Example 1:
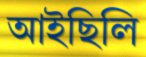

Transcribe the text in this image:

আইছিলি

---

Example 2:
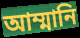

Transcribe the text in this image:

আম্মানি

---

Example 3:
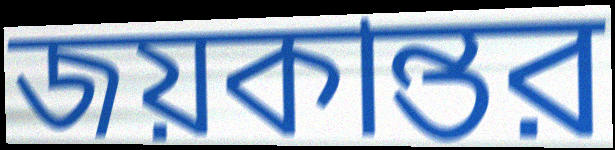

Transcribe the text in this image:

জয়কান্তর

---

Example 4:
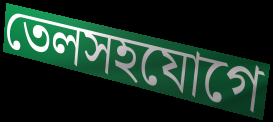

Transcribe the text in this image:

তেলসহযোগে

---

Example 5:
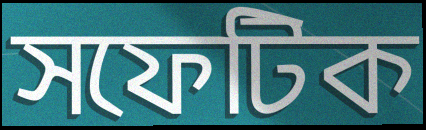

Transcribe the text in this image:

সফেটিক